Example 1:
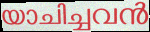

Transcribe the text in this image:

യാചിച്ചവൻ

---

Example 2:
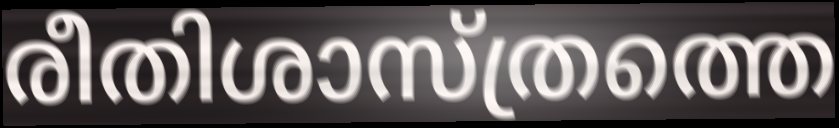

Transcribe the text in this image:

രീതിശാസ്ത്രത്തെ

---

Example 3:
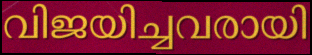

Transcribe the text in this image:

വിജയിച്ചവരായി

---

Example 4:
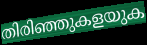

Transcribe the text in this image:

തിരിഞ്ഞുകളയുക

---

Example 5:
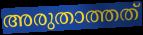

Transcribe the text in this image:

അരുതാത്തത്